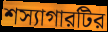
শস্যাগারটির